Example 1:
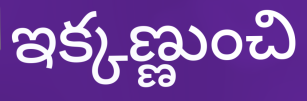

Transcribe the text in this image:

ఇక్కణ్ణుంచి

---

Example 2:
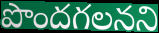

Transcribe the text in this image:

పొందగలనని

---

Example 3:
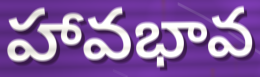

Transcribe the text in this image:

హావభావ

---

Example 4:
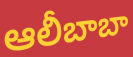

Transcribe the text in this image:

ఆలీబాబా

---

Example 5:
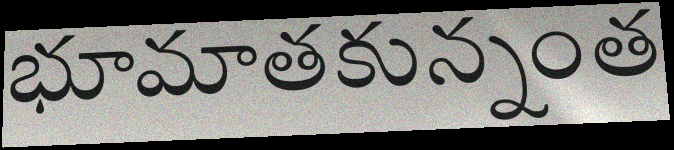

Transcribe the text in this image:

భూమాతకున్నంత